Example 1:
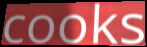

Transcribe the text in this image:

cooks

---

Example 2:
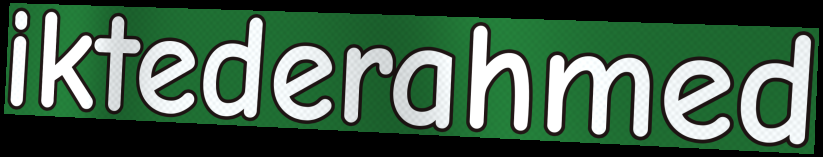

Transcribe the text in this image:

iktederahmed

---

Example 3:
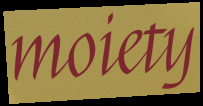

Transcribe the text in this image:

moiety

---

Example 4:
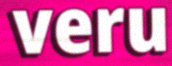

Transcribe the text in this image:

veru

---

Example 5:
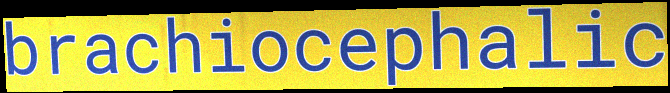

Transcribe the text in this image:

brachiocephalic